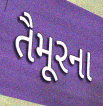
તૈમૂરના